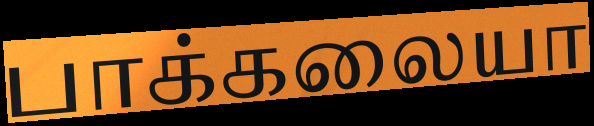
பாக்கலையா